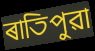
ৰাতিপুৱা